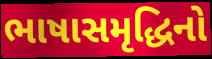
ભાષાસમૃદ્ધિનો